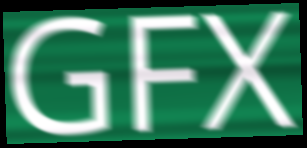
GFX